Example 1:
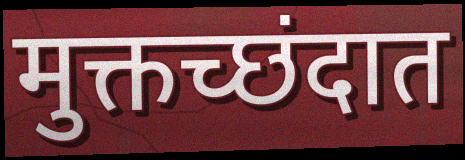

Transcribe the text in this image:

मुक्तच्छंदात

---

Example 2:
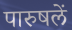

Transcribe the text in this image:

पारुषलें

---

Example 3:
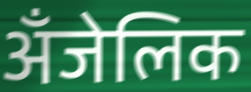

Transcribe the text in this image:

अँजेलिक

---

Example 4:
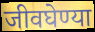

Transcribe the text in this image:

जीवघेण्या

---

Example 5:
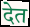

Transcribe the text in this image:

देत